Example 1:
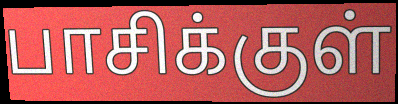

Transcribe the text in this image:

பாசிக்குள்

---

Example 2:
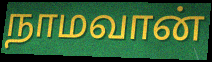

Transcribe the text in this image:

நாமவான்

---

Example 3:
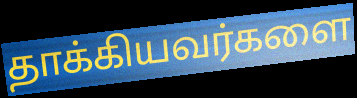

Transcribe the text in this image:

தாக்கியவர்களை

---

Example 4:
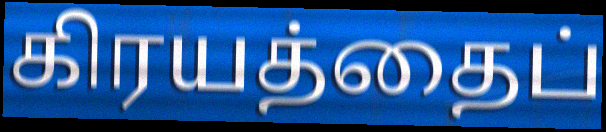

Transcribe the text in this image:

கிரயத்தைப்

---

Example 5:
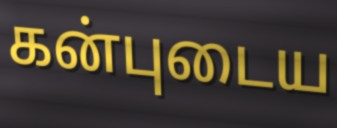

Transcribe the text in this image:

கன்புடைய